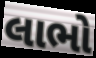
લાભો